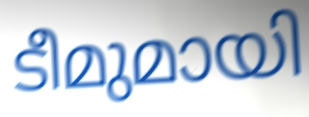
ടീമുമായി